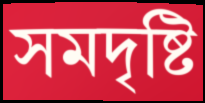
সমদৃষ্টি